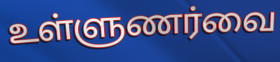
உள்ளுணர்வை